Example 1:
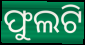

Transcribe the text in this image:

ଫୁଲଟି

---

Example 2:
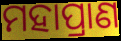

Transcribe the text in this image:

ମହାପ୍ରାଣ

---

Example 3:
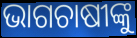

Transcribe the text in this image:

ଭାଗଚାଷୀଙ୍କୁ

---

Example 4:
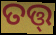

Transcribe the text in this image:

ତତ୍ତ୍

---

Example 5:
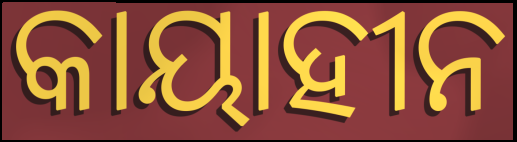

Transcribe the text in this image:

କାୟାହୀନ